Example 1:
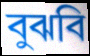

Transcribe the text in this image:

বুঝবি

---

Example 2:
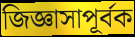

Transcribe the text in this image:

জিজ্ঞাসাপূর্বক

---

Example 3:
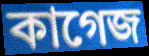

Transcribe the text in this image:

কাগেজ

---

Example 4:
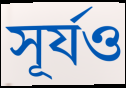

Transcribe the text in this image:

সূর্যও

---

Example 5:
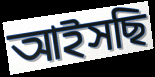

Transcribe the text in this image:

আইসছি